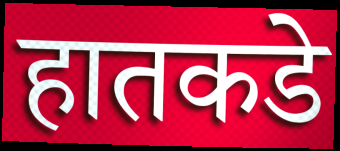
हातकडे